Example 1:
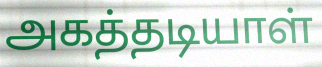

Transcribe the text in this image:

அகத்தடியாள்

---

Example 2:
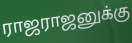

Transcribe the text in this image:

ராஜராஜனுக்கு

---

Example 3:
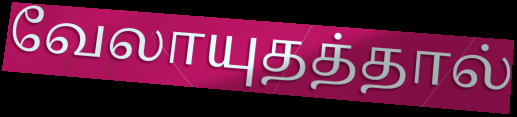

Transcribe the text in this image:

வேலாயுதத்தால்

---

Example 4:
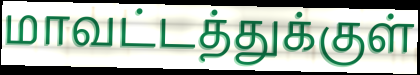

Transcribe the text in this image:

மாவட்டத்துக்குள்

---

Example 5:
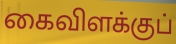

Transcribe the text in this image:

கைவிளக்குப்